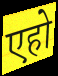
एहो